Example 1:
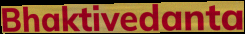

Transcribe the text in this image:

Bhaktivedanta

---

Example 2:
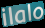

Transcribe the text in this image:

ilalo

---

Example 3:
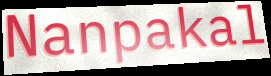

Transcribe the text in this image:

Nanpakal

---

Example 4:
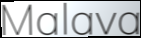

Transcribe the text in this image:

Malava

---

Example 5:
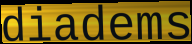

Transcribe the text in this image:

diadems